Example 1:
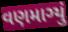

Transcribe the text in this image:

વણમાગ્યું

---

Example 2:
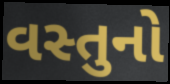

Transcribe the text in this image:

વસ્તુનો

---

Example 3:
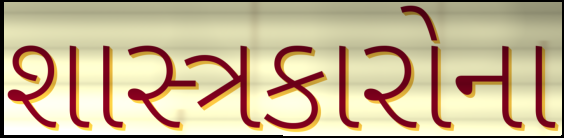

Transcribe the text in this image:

શાસ્ત્રકારોના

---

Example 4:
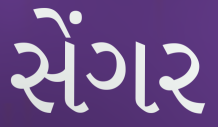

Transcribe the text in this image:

સેંગર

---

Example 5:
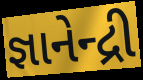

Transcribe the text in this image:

જ્ઞાનેન્દ્રી